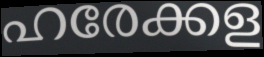
ഹരേക്കള